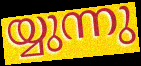
യ്യുന്നു